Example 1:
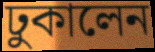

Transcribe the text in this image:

ঢুকালেন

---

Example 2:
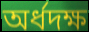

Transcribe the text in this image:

অর্ধদক্ষ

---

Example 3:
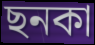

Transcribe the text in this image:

ছনকা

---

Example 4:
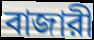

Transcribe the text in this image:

বাজারী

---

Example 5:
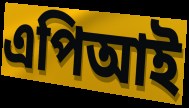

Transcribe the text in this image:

এপিআই